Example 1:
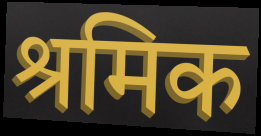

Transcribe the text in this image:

श्रमिक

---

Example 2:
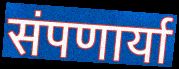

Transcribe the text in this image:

संपणार्या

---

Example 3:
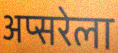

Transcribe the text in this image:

अप्सरेला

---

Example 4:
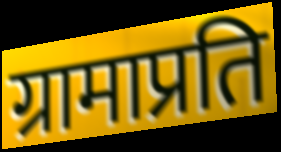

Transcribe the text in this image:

ग्रामाप्रति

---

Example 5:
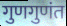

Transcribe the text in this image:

गुणगुणंत